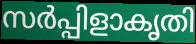
സർപ്പിളാകൃതി